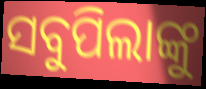
ସବୁପିଲାଙ୍କୁ